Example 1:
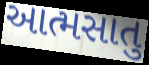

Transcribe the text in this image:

આત્મસાતુ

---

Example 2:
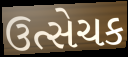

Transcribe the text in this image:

ઉત્સેચક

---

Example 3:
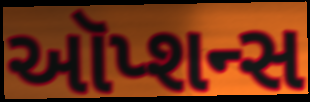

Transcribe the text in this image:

ઑપ્શન્સ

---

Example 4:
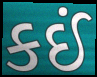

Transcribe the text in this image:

કઈં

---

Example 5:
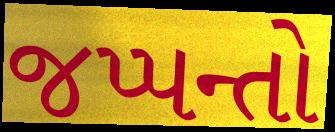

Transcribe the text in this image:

જપ્પન્તો